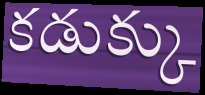
కడుక్కు